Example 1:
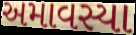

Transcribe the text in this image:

અમાવસ્યા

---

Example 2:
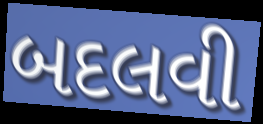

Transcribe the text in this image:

બદલવી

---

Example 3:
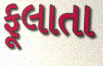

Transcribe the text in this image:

ફૂલાતા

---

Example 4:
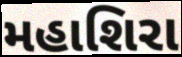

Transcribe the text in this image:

મહાશિરા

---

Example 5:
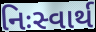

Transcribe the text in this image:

નિઃસ્વાર્થ